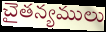
చైతన్యములు